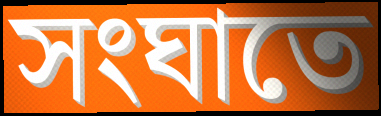
সংঘাতে